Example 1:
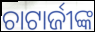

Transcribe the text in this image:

ଚାଟାର୍ଜୀଙ୍କ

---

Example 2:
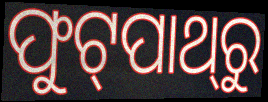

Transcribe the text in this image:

ଫୁଟ୍‌ପାଥ୍‌ରୁ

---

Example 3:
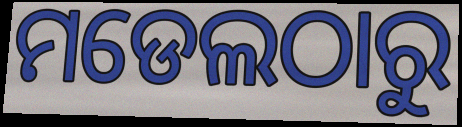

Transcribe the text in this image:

ମଡେଲଠାରୁ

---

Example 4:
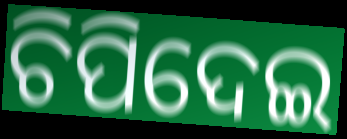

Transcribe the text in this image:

ଚିପିଦେଇ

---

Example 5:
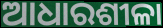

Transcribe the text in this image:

ଆଧାରଶୀଳା